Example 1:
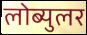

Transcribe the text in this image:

लोब्युलर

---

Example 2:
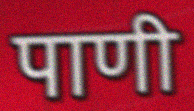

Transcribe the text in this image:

पाणी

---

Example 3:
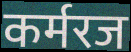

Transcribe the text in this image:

कर्मरज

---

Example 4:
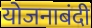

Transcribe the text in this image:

योजनाबंदी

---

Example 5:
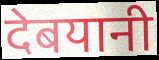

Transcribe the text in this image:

देबयानी